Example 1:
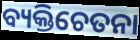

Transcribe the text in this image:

ବ୍ୟକ୍ତିଚେତନା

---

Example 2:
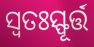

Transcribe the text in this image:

ସ୍ୱତଃସ୍ଫୂର୍ତ୍ତ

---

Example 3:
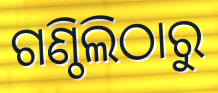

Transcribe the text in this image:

ଗଣ୍ଠିଲିଠାରୁ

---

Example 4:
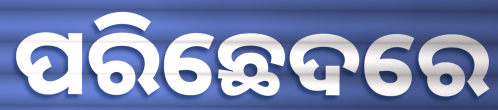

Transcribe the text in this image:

ପରିଛେଦରେ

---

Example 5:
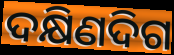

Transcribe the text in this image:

ଦକ୍ଷିଣଦିଗ